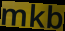
mkb